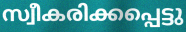
സ്വീകരിക്കപ്പെട്ടു